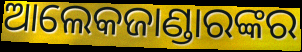
ଆଲେକଜାଣ୍ଡାରଙ୍କର